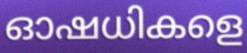
ഓഷധികളെ